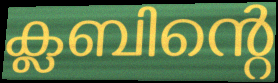
ക്ലബിന്റെ